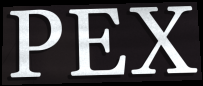
PEX